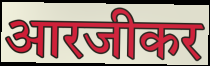
आरजीकर